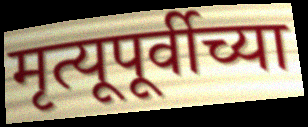
मृत्यूपूर्वीच्या